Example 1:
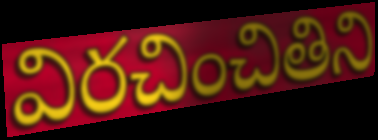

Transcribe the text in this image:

విరచించితిని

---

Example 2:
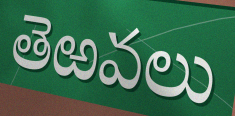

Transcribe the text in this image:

తెఱవలు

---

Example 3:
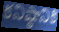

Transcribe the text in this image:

కనిష్ఠానికి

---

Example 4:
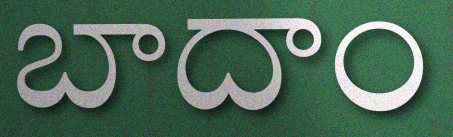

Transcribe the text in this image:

బాదాం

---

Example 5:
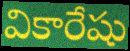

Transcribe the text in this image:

వికారేషు